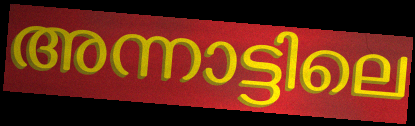
അന്നാട്ടിലെ